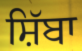
ਸ਼ਿੱਬਾ